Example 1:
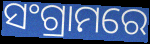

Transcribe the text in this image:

ସଂଗ୍ରାମରେ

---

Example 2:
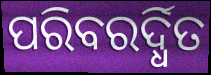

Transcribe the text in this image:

ପରିବରର୍ଦ୍ଧିତ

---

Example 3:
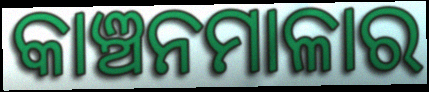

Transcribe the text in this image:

କାଞ୍ଚନମାଳାର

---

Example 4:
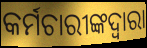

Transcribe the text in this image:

କର୍ମଚାରୀଙ୍କଦ୍ୱାରା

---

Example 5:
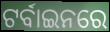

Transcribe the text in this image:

ଟର୍ବାଇନରେ